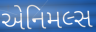
એનિમલ્સ